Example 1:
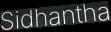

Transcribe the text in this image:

Sidhantha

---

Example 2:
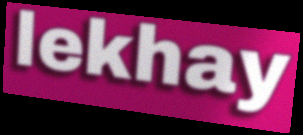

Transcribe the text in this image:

lekhay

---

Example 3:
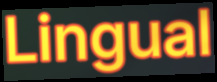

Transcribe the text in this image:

Lingual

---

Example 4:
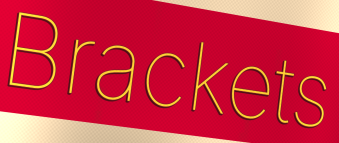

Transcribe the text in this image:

Brackets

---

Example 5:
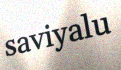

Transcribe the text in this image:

saviyalu